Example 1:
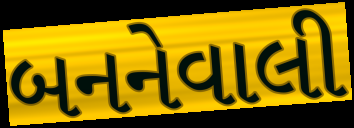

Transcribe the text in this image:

બનનેવાલી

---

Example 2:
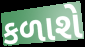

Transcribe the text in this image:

કળાશે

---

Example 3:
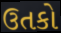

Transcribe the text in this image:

ઉતકો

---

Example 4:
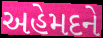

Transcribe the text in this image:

અહેમદને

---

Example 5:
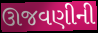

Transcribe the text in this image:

ઊજવણીની